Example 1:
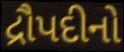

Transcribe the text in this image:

દ્રૌપદીનો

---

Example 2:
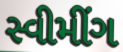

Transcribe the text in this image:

સ્વીમીંગ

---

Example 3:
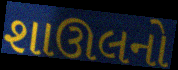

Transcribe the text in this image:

શાઊલનો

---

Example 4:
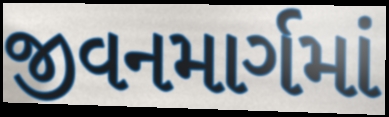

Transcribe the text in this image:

જીવનમાર્ગમાં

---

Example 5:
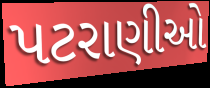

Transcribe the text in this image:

પટરાણીઓ